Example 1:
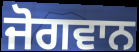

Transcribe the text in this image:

ਜੋਗਵਾਨ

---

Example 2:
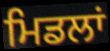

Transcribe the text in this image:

ਮਿਡਲਾਂ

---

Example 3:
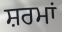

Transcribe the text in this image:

ਸ਼ਰਮਾਂ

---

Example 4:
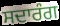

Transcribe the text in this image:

ਸਦਾਰੰਗ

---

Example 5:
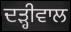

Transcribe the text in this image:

ਦੜ੍ਹੀਵਾਲ